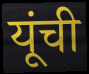
यूंची